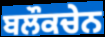
ਬਲੌਕਚੇਨ